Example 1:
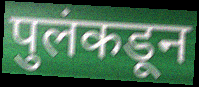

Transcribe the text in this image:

पुलंकडून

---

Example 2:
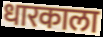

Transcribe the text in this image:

धारकाला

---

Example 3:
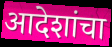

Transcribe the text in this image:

आदेशांचा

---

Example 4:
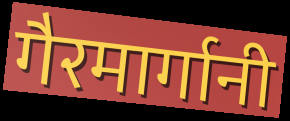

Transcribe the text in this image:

गैरमार्गानी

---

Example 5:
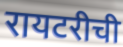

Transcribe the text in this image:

रायटरीची